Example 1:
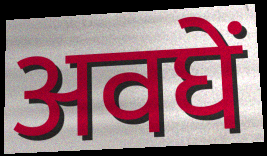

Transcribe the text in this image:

अवघें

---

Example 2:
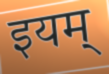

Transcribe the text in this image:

इयम्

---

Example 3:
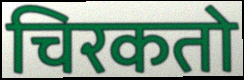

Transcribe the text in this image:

चिरकतो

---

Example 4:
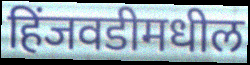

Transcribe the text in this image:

हिंजवडीमधील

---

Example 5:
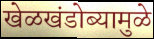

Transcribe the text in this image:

खेळखंडोब्यामुळे